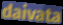
daivata